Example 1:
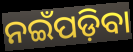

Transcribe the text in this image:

ନଇଁପଡ଼ିବା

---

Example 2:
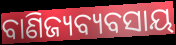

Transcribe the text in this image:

ବାଣିଜ୍ୟବ୍ୟବସାୟ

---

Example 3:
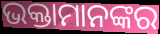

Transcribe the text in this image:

ଭକ୍ତାମାନଙ୍କର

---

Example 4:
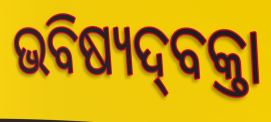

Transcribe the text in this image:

ଭବିଷ୍ୟଦ୍‌ବକ୍ତା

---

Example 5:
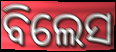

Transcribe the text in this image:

ବିଲେସ